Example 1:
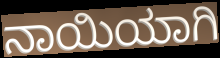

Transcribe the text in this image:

ನಾಯಿಯಾಗಿ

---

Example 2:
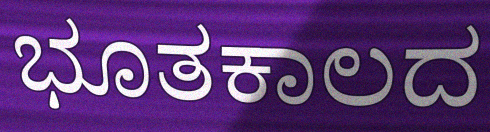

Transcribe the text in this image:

ಭೂತಕಾಲದ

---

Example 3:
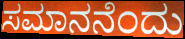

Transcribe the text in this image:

ಸಮಾನನೆಂದು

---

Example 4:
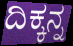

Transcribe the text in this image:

ದಿಕ್ಕನ್ನ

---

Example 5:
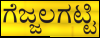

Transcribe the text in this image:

ಗೆಜ್ಜಲಗಟ್ಟಿ